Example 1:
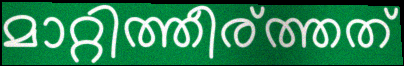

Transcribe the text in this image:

മാറ്റിത്തീര്ത്തത്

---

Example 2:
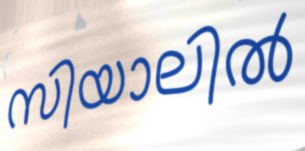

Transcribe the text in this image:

സിയാലിൽ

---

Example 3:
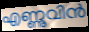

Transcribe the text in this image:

എണ്ണുവിൻ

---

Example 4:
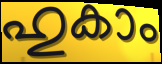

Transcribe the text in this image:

ഹുകാം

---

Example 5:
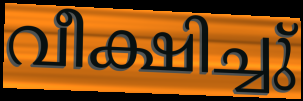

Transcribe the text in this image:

വീക്ഷിച്ചു്